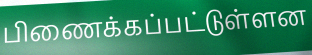
பிணைக்கப்பட்டுள்ளன